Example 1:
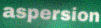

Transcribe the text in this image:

aspersion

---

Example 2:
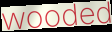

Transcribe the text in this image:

wooded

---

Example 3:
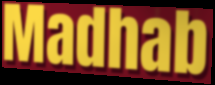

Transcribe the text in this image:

Madhab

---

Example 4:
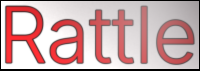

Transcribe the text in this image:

Rattle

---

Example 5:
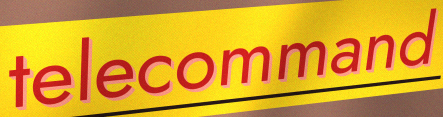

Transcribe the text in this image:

telecommand